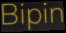
Bipin